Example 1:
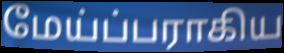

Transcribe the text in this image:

மேய்ப்பராகிய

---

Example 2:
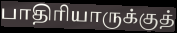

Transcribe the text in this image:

பாதிரியாருக்குத்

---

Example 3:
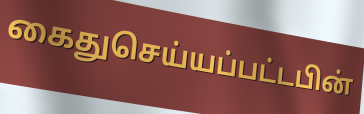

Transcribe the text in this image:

கைதுசெய்யப்பட்டபின்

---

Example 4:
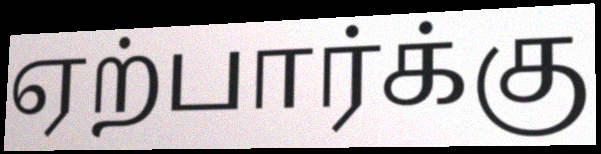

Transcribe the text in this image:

ஏற்பார்க்கு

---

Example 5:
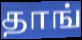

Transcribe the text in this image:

தாங்